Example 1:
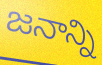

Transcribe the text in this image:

జనాన్ని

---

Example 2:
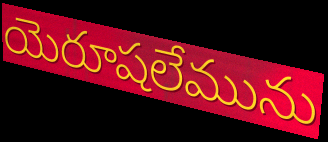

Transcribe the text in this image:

యెరూషలేమును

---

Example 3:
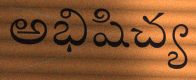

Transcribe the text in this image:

అభిషిచ్య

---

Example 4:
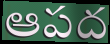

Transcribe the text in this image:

ఆపద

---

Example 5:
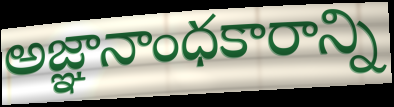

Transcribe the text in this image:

అజ్ఞానాంధకారాన్ని